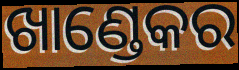
ଖାଣ୍ଡେକର